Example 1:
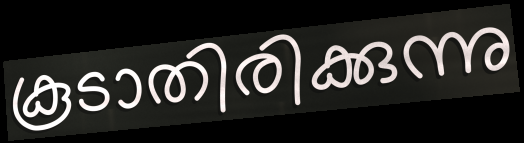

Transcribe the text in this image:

കൂടാതിരിക്കുന്നു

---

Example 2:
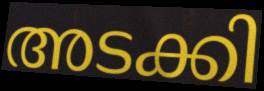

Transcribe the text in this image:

അടക്കി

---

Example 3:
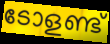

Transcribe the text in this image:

ടോളണ്ട്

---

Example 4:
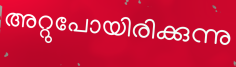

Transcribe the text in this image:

അറ്റുപോയിരിക്കുന്നു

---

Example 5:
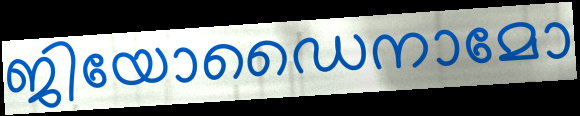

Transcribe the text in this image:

ജിയോഡൈനാമോ